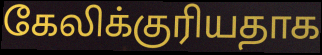
கேலிக்குரியதாக